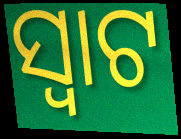
ସ୍ୱାଟ